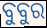
ବୁବୁର